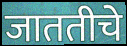
जाततीचे